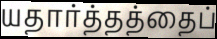
யதார்த்தத்தைப்